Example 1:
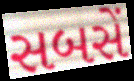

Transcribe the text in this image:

સબસેં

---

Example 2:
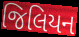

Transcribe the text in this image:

જિલિયન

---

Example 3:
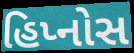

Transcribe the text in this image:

હિપ્નોસ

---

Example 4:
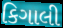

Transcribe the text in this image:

કિગાલી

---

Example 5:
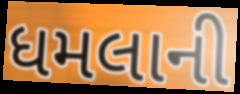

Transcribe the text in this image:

ધમલાની